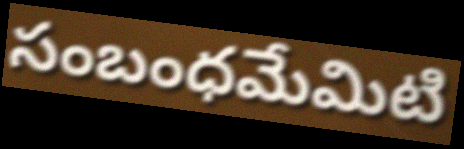
సంబంధమేమిటి